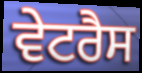
ਵੇਟਰੈਸ